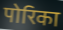
पोरिका